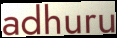
adhuru